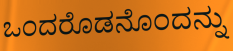
ಒಂದರೊಡನೊಂದನ್ನು